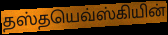
தஸ்தயெவ்ஸ்கியின்